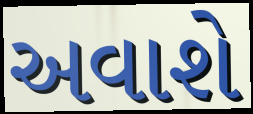
અવાશે